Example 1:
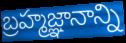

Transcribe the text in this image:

బ్రహ్మజ్ఞానాన్ని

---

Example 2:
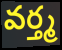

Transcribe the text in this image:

వర్త్మ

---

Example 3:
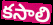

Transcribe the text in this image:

కసాలి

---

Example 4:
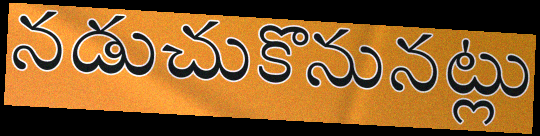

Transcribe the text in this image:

నడుచుకొనునట్లు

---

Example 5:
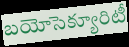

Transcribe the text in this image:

బయోసెక్యూరిటీ